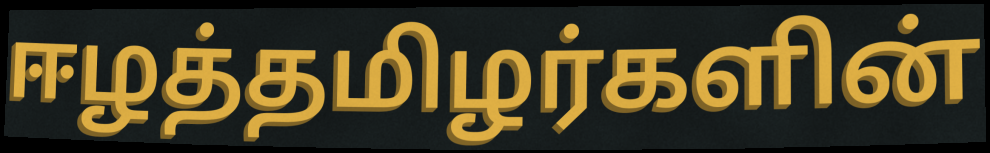
ஈழத்தமிழர்களின்